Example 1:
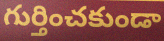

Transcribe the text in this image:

గుర్తించకుండా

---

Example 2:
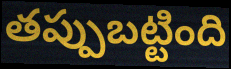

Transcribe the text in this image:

తప్పుబట్టింది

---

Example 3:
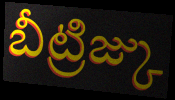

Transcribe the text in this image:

బీట్రిజ్కు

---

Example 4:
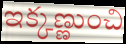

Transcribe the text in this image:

ఇక్కణ్ణుంచి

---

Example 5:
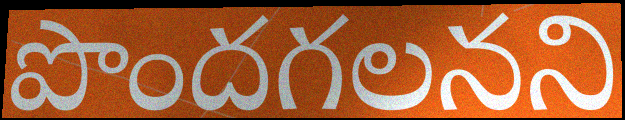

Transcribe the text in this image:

పొందగలనని